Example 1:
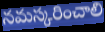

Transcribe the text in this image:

నమస్కరించాలి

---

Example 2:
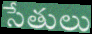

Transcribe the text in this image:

సేతులు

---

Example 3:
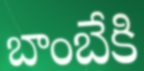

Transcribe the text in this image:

బాంబేకి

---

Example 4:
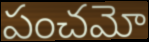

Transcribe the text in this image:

పంచమో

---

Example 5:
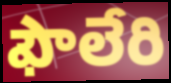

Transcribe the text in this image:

ఫౌలేరి